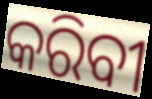
କରିବୀ